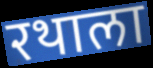
रथाला